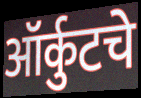
ऑर्कुटचे